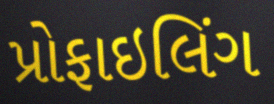
પ્રોફાઇલિંગ